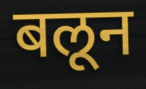
बलून